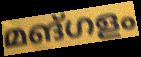
മങ്ഗളം